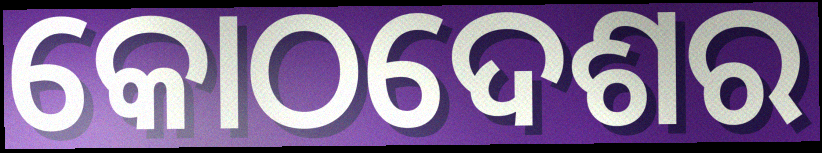
କୋଠଦେଶର